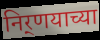
निर्णयाच्या